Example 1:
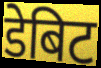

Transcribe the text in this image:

डेबिट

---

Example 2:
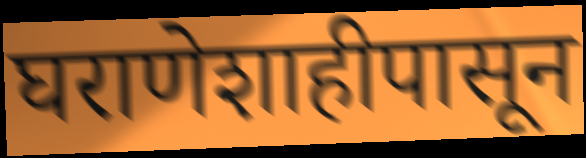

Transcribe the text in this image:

घराणेशाहीपासून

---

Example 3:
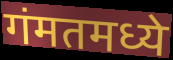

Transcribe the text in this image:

गंमतमध्ये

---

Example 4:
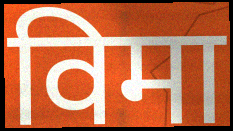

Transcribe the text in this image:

विमा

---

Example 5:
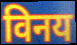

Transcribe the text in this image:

विनय